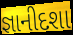
જ્ઞાનીદશા